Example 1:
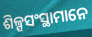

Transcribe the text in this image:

ଶିଳ୍ପସଂସ୍ଥାମାନେ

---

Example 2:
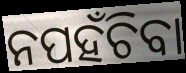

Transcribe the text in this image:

ନପହଁଚିବା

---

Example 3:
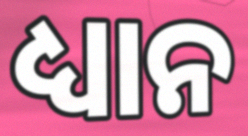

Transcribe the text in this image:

ଧ୍ୟାନ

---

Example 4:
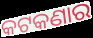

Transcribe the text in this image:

କଟକଣାର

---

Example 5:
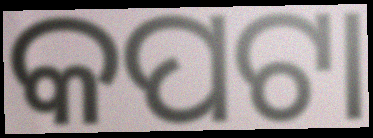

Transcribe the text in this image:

କପଟା